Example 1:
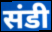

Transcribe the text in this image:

संडी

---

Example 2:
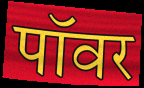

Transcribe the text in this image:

पॉवर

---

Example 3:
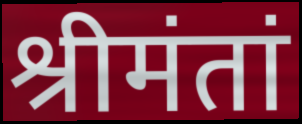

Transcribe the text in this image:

श्रीमंतां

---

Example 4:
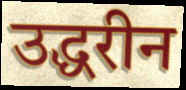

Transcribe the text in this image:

उद्धरीन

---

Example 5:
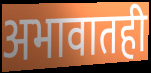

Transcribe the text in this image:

अभावातही